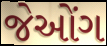
જેઓંગ